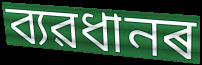
ব্যৱধানৰ